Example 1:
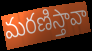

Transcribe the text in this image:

మరణిస్తావా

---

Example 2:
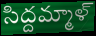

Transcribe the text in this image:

సిద్దమ్మాళ్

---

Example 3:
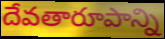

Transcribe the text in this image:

దేవతారూపాన్ని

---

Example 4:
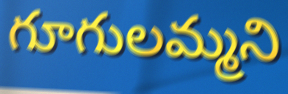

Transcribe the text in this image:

గూగులమ్మని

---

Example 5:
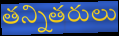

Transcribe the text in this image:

తన్నితరులు